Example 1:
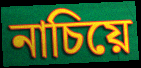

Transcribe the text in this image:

নাচিয়ে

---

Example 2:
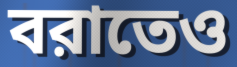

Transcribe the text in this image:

বরাতেও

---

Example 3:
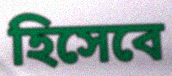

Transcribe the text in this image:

হিসেবে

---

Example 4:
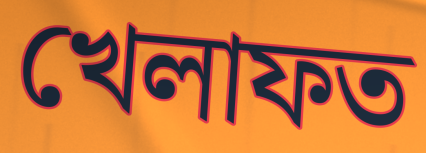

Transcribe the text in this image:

খেলাফত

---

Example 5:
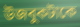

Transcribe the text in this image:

উজবুকটাকে